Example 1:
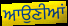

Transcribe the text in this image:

ਆਉਣੀਆਂ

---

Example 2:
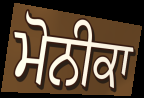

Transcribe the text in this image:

ਮੋਨੀਕਾ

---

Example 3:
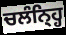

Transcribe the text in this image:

ਚਲੰਨ੍ਹ੍ਹਿ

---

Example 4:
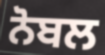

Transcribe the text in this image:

ਨੋਬਲ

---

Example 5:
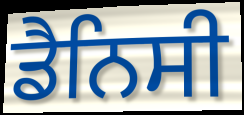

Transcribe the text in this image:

ਡੈਨਿਸੀ